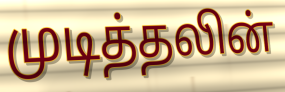
முடித்தலின்